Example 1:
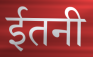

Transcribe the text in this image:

ईतनी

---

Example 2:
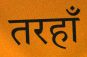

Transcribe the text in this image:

तरहाँ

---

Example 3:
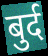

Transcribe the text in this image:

बुर्द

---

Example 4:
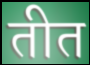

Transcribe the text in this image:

तीत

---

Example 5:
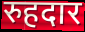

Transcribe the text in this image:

रुहदार